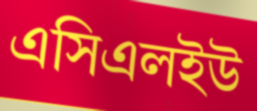
এসিএলইউ